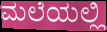
ಮಲೆಯಲ್ಲಿ